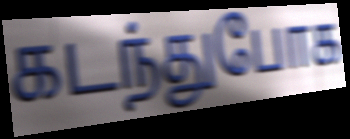
கடந்துபோக